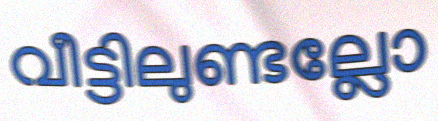
വീട്ടിലുണ്ടല്ലോ